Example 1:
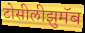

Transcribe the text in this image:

टोसीलीझुमॅब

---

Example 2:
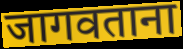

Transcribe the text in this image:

जागवताना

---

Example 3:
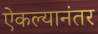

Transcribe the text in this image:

ऐकल्यानंतर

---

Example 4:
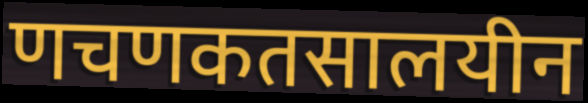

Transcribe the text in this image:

णचणकतसालयीन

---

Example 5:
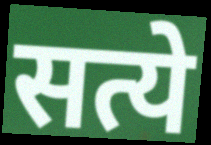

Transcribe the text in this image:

सत्ये